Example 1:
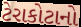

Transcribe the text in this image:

ટેરાકોટાનો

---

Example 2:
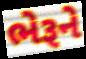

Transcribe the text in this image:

ભેરૂને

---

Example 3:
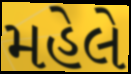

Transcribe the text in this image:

મહેલે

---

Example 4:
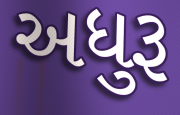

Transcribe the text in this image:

અધુરૂ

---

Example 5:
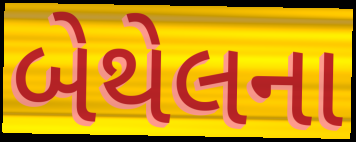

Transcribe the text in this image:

બેથેલના